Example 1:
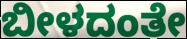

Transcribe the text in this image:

ಬೀಳದಂತೇ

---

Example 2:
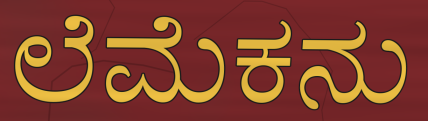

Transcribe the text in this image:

ಲೆಮೆಕನು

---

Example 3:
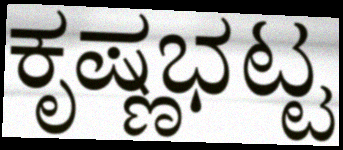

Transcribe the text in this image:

ಕೃಷ್ಣಭಟ್ಟ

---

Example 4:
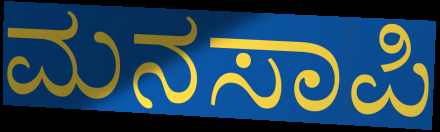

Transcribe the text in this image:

ಮನಸಾಪಿ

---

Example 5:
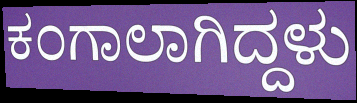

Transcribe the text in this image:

ಕಂಗಾಲಾಗಿದ್ದಳು